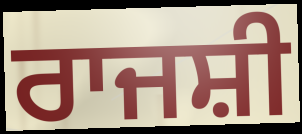
ਰਾਜਸ਼ੀ